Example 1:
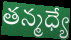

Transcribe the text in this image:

తన్మధ్యే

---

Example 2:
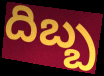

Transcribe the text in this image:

దిబ్బ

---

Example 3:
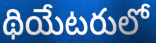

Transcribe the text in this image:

థియేటరులో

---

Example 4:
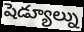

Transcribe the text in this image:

షెడ్యూల్ను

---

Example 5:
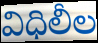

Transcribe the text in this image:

విధిలీల